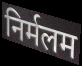
निर्मलम